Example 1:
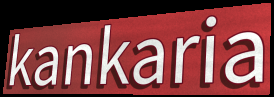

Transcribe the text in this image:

kankaria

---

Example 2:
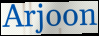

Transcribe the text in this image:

Arjoon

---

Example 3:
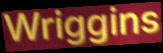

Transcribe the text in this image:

Wriggins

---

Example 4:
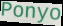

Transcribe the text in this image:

Ponyo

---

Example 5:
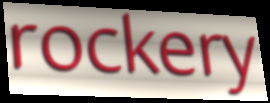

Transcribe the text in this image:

rockery